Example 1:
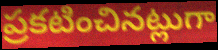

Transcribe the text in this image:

ప్రకటించినట్లుగా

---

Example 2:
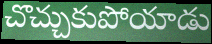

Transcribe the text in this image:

చొచ్చుకుపోయాడు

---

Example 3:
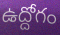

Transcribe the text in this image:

ఉద్దోగం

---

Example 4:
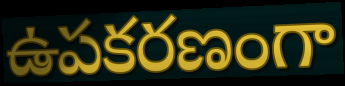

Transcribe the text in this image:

ఉపకరణంగా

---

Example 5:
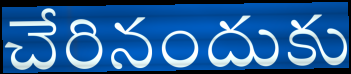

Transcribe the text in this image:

చేరినందుకు